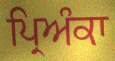
ਪ੍ਰਿਅੰਕਾ